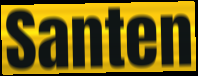
Santen